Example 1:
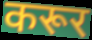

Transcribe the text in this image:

करूर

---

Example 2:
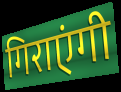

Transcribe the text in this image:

गिराएंगी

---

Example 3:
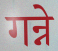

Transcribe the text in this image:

गन्ने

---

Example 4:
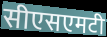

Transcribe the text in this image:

सीएसएमटी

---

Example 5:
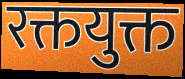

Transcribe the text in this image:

रक्तयुक्त